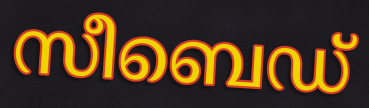
സീബെഡ്